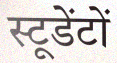
स्टूडेंटों